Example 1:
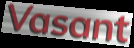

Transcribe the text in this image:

Vasant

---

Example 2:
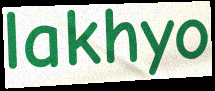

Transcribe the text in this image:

lakhyo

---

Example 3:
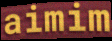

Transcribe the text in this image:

aimim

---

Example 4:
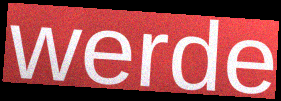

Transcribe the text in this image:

werde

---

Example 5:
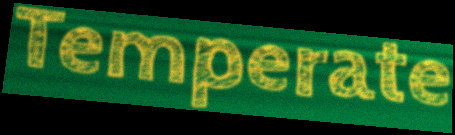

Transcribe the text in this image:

Temperate